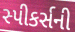
સ્પીકર્સની